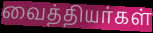
வைத்தியர்கள்